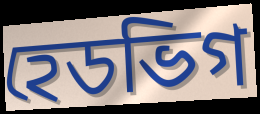
হেডভিগ